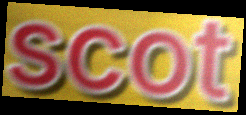
scot